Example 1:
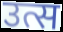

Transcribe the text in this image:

उत्स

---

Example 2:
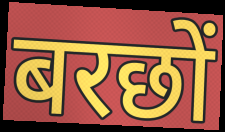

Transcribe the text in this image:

बरछों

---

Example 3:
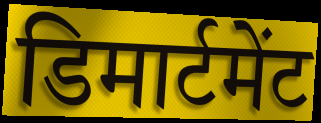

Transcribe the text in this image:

डिमार्टमेंट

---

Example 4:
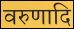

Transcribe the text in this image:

वरुणादि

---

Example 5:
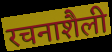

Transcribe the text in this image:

रचनाशैली